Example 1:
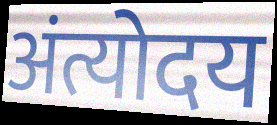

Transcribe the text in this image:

अंत्योदय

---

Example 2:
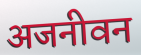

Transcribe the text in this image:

अजनीवन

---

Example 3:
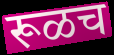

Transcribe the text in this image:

रूळच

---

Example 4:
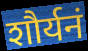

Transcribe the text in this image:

शौर्यनं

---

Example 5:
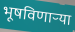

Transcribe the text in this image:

भूषविणाऱ्या